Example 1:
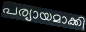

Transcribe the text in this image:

പര്യായമാക്കി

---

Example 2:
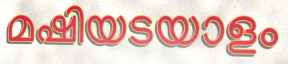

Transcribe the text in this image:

മഷിയടയാളം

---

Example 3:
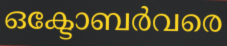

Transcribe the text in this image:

ഒക്ടോബർവരെ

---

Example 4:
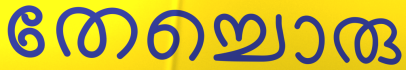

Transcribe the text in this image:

തേച്ചൊരു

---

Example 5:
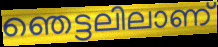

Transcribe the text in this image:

ഞെട്ടലിലാണ്